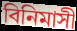
বিনিমাসী